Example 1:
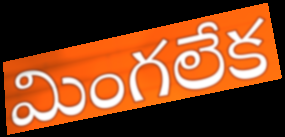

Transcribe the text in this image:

మింగలేక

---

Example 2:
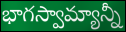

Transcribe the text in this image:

భాగస్వామ్యాన్నీ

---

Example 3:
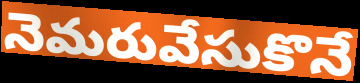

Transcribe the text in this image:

నెమరువేసుకొనే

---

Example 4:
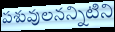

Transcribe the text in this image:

పశువులనన్నిటిని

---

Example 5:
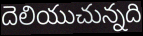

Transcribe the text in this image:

దెలియుచున్నది